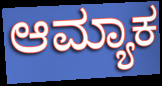
ಆಮ್ಯಾಕ